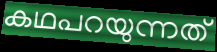
കഥപറയുന്നത്